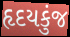
હૃદયકુંજ